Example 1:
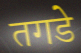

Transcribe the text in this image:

तगडे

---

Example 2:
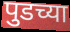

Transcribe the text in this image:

पुडच्या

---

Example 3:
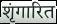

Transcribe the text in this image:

शृंगारित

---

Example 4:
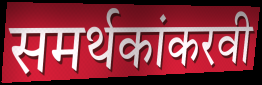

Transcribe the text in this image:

समर्थकांकरवी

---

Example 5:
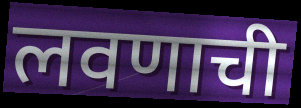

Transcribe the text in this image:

लवणाची